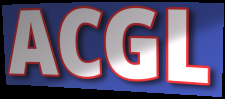
ACGL